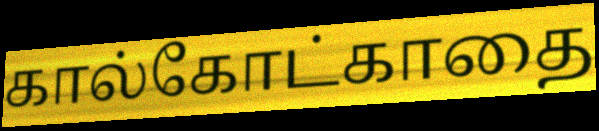
கால்கோட்காதை